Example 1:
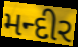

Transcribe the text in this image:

મન્દીર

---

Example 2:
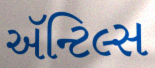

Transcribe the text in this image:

ઍન્ટિલ્સ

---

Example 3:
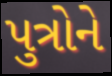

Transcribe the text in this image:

પુત્રોને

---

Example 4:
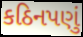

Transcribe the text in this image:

કઠિનપણું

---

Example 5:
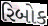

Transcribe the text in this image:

રિબોક